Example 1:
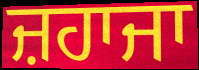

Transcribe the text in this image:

ਜ਼ਹਾਜਾ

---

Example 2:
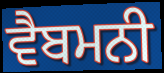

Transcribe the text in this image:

ਵੈਬਮਨੀ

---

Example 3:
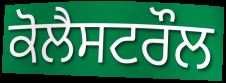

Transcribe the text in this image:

ਕੋਲੈਸਟਰੌਲ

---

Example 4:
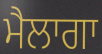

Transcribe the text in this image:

ਮੈਲਾਗਾ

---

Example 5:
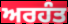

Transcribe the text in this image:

ਅਰਹੰਤ